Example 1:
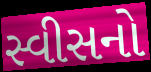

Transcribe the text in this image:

સ્વીસનો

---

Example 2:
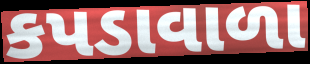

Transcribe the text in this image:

કપડાવાળા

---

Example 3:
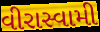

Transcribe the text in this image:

વીરાસ્વામી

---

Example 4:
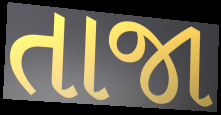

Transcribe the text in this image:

તાજા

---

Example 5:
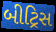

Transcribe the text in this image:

બીટ્રિસ